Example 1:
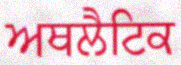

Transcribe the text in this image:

ਅਥਲੈਟਿਕ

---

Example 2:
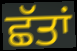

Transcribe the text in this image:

ਛੱਤਾਂ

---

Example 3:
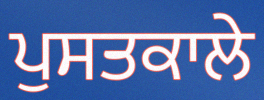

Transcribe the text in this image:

ਪੁਸਤਕਾਲੇ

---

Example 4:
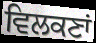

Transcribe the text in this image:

ਵਿਲਕਣਾਂ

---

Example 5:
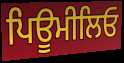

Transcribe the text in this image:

ਪਿਊਮੀਲਿਓ